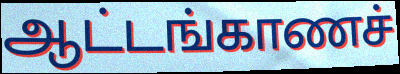
ஆட்டங்காணச்